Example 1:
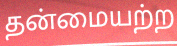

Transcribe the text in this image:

தன்மையற்ற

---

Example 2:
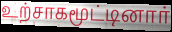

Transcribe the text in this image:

உற்சாகமூட்டினார்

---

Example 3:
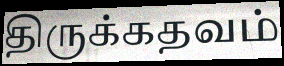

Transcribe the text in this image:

திருக்கதவம்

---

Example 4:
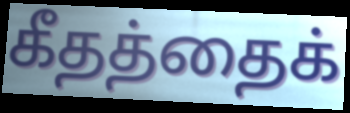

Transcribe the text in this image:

கீதத்தைக்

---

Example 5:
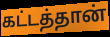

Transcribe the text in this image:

கட்டத்தான்